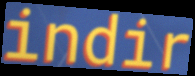
indir